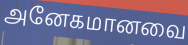
அனேகமானவை